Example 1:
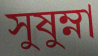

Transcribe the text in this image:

সুষুম্না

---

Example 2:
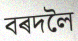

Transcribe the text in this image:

বৰদলৈ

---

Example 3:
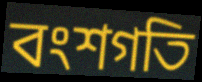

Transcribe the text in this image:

বংশগতি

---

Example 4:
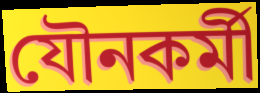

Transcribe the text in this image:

যৌনকৰ্মী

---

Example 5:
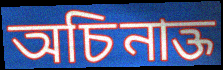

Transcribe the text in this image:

অচিনাক্ত